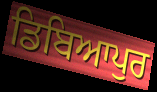
ਡਿਬਿਆਪੁਰ